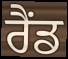
ਰੈਂਡ